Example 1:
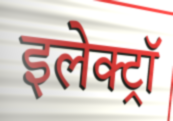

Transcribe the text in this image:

इलेक्ट्रॉ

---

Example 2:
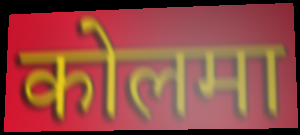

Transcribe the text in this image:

कोलमा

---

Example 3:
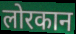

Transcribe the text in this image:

लोरकान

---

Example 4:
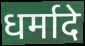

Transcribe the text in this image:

धर्मादे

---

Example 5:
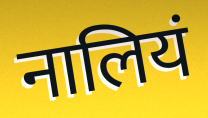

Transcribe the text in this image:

नालियं